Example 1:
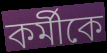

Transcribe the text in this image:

কর্মীকে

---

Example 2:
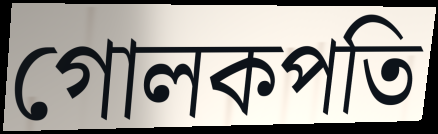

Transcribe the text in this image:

গোলকপতি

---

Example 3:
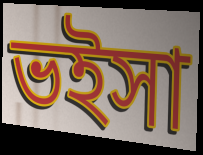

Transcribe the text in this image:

ভইসা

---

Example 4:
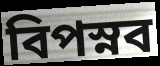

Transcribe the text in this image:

বিপস্নব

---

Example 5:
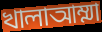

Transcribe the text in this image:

খালাআম্মা